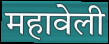
महावेली